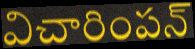
విచారింపన్